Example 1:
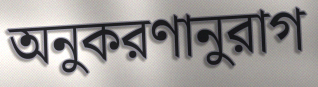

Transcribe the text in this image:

অনুকরণানুরাগ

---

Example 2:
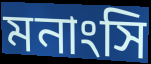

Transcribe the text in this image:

মনাংসি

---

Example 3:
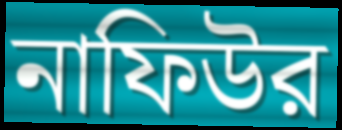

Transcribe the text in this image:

নাফিউর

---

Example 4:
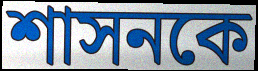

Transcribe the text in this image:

শাসনকে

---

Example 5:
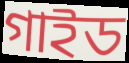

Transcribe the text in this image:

গাইড